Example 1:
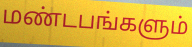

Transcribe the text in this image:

மண்டபங்களும்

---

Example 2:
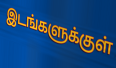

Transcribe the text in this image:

இடங்களுக்குள்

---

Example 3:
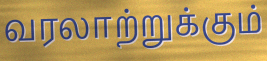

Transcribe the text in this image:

வரலாற்றுக்கும்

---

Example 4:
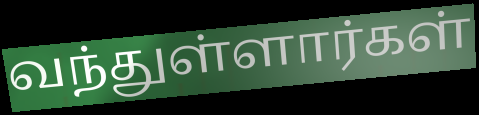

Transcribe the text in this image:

வந்துள்ளார்கள்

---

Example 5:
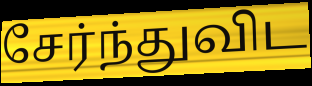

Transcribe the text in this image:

சேர்ந்துவிட